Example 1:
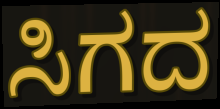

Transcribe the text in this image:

ಸಿಗದ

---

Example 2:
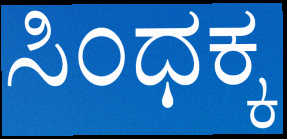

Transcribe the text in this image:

ಸಿಂಧಕ್ಕ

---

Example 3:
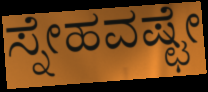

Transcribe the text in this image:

ಸ್ನೇಹವಷ್ಟೇ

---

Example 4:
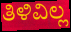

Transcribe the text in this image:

ತಿಳಿವಿಲ್ಲ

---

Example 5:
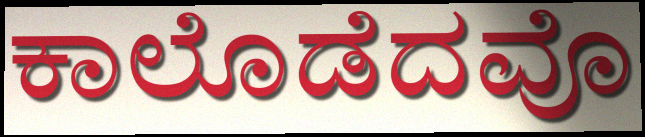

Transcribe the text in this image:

ಕಾಲೊಡೆದವೊ